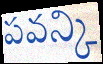
పవన్కి